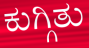
ಕುಗ್ಗಿತು